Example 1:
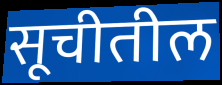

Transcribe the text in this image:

सूचीतील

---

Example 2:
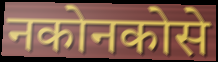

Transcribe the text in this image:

नकोनकोसे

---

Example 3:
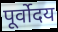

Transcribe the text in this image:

पूर्वोदय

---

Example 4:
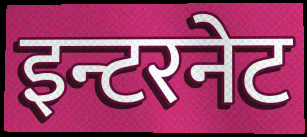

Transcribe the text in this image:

इन्टरनेट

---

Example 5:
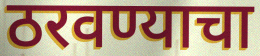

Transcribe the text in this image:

ठरवण्याचा